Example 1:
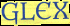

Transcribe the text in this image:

GLEX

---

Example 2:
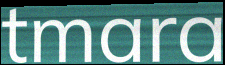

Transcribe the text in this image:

tmara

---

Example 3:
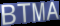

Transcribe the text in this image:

BTMA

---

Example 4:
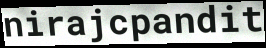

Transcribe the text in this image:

nirajcpandit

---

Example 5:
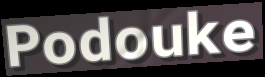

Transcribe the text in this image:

Podouke